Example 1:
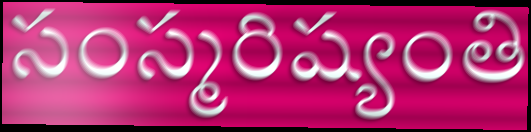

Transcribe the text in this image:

సంస్మరిష్యంతి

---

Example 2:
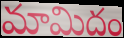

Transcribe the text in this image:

మామిదం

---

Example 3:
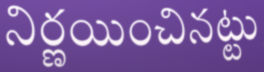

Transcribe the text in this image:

నిర్ణయించినట్టు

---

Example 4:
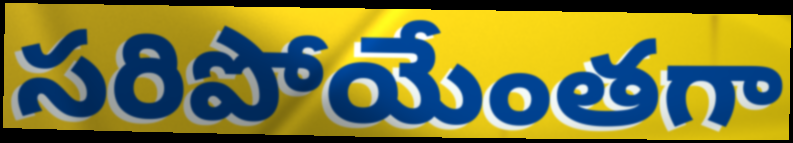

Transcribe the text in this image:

సరిపోయేంతగా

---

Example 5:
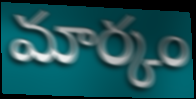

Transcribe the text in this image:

మార్కం